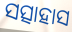
ସତ୍ସାହାସ